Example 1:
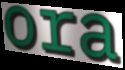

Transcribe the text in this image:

ora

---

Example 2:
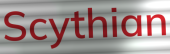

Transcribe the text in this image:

Scythian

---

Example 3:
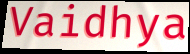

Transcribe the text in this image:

Vaidhya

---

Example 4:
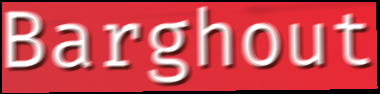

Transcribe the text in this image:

Barghout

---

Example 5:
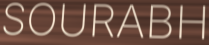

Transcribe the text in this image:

SOURABH